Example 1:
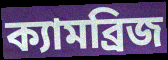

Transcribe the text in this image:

ক্যামব্রিজ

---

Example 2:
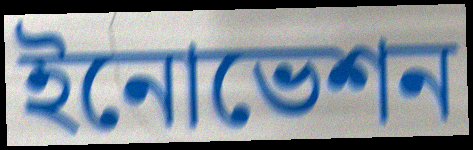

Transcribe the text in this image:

ইনোভেশন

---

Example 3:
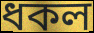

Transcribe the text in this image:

ধকল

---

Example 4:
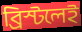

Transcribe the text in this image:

ব্রিস্টলেই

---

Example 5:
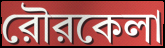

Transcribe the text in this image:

রৌরকেলা